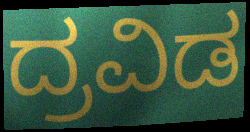
ದ್ರವಿಡ